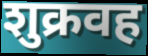
शुक्रवह